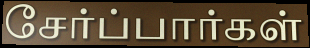
சேர்ப்பார்கள்